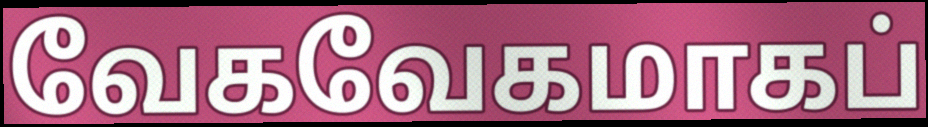
வேகவேகமாகப்